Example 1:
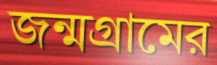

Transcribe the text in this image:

জন্মগ্রামের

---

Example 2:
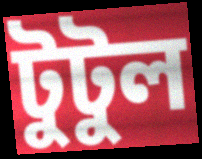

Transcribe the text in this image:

টুটুল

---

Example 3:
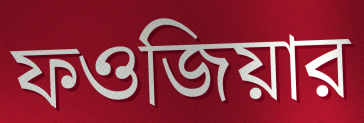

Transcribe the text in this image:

ফওজিয়ার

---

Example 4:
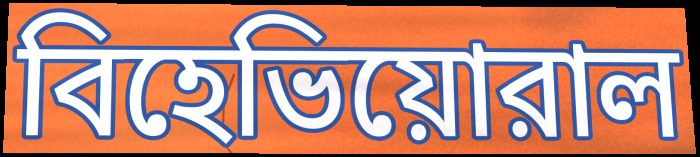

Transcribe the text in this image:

বিহেভিয়োরাল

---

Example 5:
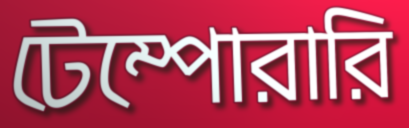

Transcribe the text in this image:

টেম্পোরারি